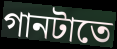
গানটাতে